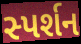
સ્પર્શન